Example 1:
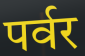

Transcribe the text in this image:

पर्वर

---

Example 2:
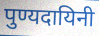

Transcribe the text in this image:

पुण्यदायिनी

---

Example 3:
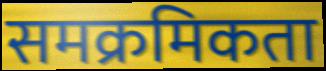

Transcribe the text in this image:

समक्रमिकता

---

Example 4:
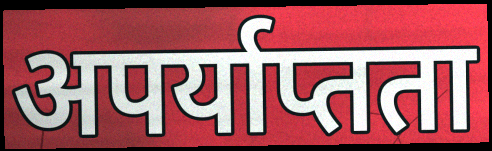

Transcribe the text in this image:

अपर्याप्तता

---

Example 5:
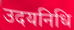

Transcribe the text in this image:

उदयनिधि